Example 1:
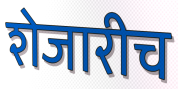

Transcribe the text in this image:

शेजारीच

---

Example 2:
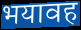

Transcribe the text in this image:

भयावह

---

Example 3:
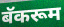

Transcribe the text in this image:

बॅकरूम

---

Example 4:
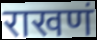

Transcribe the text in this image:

राखणं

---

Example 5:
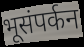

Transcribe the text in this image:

भूसंपर्कन